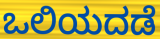
ಒಲಿಯದಡೆ